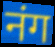
नंग